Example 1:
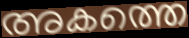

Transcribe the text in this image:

അകത്തെ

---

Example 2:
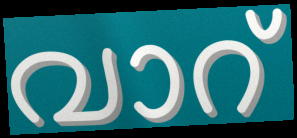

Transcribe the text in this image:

വാറ്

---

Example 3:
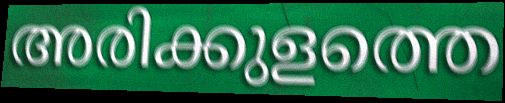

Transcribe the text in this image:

അരിക്കുളത്തെ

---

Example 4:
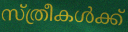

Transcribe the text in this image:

സ്ത്രീകൾക്ക്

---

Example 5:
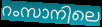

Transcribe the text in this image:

റംസാനിലെ